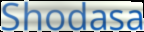
Shodasa